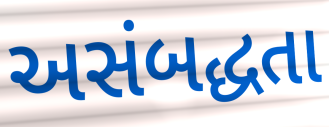
અસંબદ્ધતા